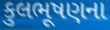
કુલભૂષણના